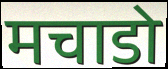
मचाडो